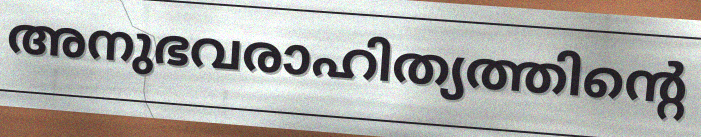
അനുഭവരാഹിത്യത്തിന്റെ